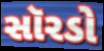
સૉરડો